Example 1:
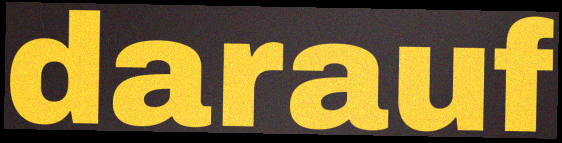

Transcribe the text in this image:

darauf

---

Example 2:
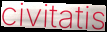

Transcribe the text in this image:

civitatis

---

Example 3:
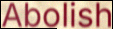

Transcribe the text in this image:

Abolish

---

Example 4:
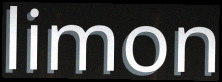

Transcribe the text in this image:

limon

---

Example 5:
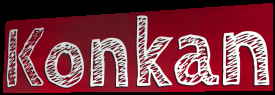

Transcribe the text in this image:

Konkan